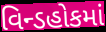
વિન્ડહોકમાં